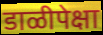
डाळीपेक्षा